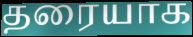
தரையாக